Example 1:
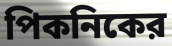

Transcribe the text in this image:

পিকনিকের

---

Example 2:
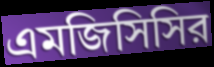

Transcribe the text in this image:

এমজিসিসির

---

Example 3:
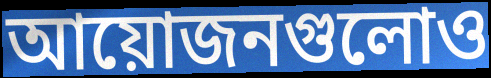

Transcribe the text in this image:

আয়োজনগুলোও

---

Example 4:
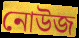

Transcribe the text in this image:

নোউজ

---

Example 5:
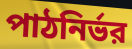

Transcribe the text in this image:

পাঠনির্ভর